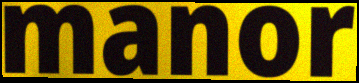
manor